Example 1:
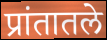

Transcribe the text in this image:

प्रांतातले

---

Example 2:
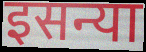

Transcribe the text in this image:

इसन्या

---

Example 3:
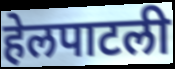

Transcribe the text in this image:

हेलपाटली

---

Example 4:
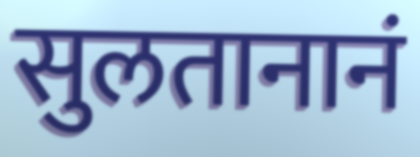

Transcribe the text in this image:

सुलतानानं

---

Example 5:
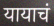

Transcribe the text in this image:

यायाचं